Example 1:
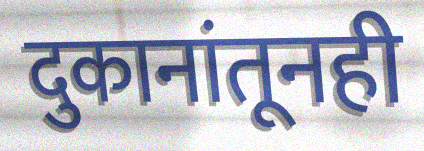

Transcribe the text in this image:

दुकानांतूनही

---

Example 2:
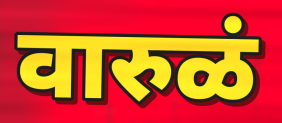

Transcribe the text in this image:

वारुळं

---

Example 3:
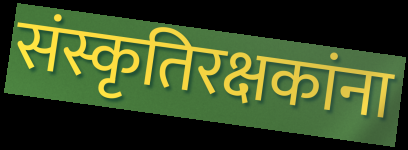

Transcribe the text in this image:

संस्कृतिरक्षकांना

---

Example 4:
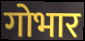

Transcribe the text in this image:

गोभार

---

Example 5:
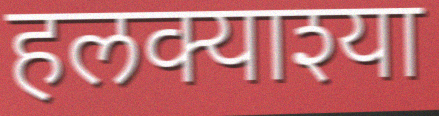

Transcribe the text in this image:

हलक्याश्या